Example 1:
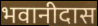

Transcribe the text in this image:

भवानीदास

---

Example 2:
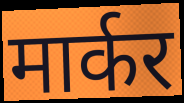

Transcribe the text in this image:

मार्कर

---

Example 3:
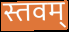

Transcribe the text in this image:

स्तवम्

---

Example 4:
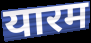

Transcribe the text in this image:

यारम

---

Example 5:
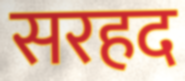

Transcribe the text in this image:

सरहद